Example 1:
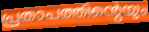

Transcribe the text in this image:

പ്രതാപത്തിന്റെയും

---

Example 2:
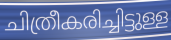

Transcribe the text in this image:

ചിത്രീകരിച്ചിട്ടുള്ള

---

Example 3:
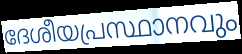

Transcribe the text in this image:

ദേശീയപ്രസ്ഥാനവും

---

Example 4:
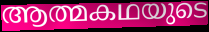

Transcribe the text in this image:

ആത്മകഥയുടെ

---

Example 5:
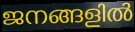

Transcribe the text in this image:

ജനങ്ങളിൽ